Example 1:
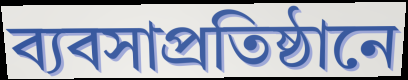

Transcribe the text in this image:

ব্যবসাপ্রতিষ্ঠানে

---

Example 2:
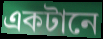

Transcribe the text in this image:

একটানে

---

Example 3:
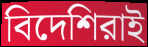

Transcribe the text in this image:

বিদেশিরাই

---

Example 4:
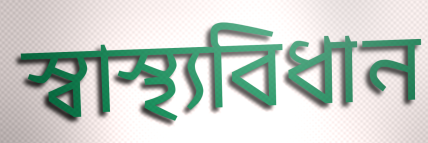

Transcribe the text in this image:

স্বাস্থ্যবিধান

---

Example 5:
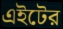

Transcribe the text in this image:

এইটের